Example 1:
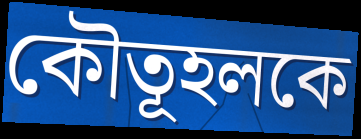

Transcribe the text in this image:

কৌতূহলকে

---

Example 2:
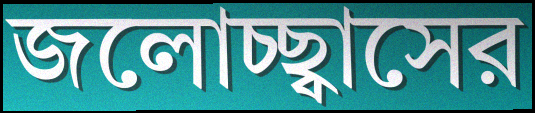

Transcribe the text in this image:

জলোচ্ছ্বাসের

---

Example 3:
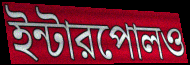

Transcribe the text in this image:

ইন্টারপোলও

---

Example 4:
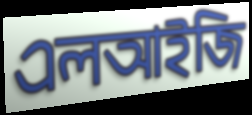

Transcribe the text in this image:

এলআইজি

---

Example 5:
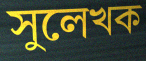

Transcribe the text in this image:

সুলেখক